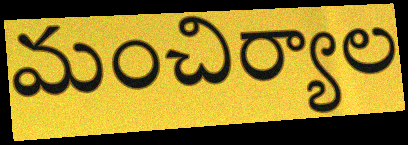
మంచిర్యాల